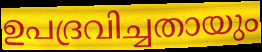
ഉപദ്രവിച്ചതായും